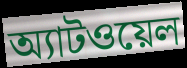
অ্যাটওয়েল